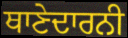
ਥਾਣੇਦਾਰਨੀ